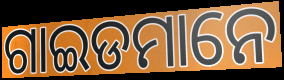
ଗାଇଡମାନେ